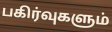
பகிர்வுகளும்